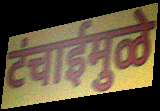
टंचाईमुळे